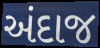
અંદાજ